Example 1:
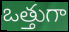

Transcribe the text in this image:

ఒత్తుగా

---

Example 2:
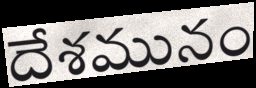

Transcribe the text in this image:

దేశమునం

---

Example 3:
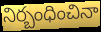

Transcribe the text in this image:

నిర్బంధించినా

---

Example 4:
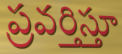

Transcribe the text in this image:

ప్రవర్తిస్తూ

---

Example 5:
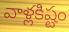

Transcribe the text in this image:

వాళ్లకిష్టం